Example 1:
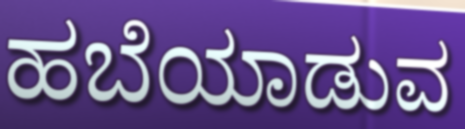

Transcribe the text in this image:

ಹಬೆಯಾಡುವ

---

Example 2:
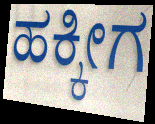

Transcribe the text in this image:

ಹಕ್ಕೀಗ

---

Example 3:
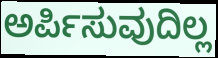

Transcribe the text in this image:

ಅರ್ಪಿಸುವುದಿಲ್ಲ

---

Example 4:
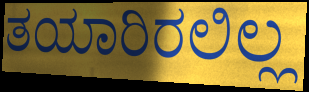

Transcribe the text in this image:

ತಯಾರಿರಲಿಲ್ಲ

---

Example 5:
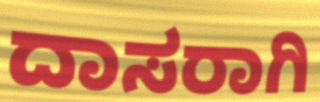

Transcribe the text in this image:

ದಾಸರಾಗಿ